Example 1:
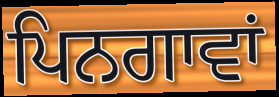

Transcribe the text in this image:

ਪਿਨਗਾਵਾਂ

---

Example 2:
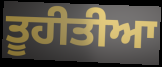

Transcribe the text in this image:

ਤੂਹੀਤੀਆ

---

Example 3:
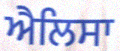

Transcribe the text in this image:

ਐਲਿਸਾ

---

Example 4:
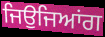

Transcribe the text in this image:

ਜਿਉਜਿਆਂਗ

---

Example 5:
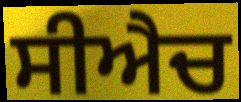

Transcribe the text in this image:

ਸੀਐਚ